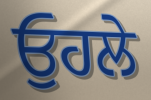
ਓੁਹਲੇ